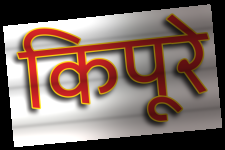
किपूरे